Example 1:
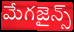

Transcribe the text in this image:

మేగజైన్స్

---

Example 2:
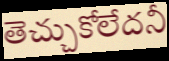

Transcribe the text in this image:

తెచ్చుకోలేదనీ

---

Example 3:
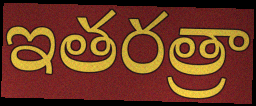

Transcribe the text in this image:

ఇతరత్రా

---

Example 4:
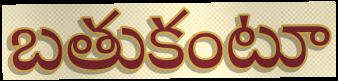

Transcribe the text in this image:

బతుకంటూ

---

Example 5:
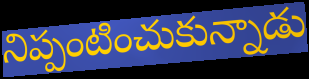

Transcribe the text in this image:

నిప్పంటించుకున్నాడు